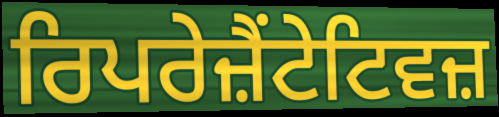
ਰਿਪਰੇਜ਼ੈਂਟੇਟਿਵਜ਼